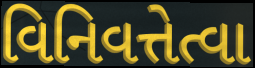
વિનિવત્તેત્વા